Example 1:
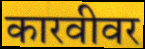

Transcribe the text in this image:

कारवीवर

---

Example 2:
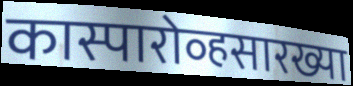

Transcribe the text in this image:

कास्पारोव्हसारख्या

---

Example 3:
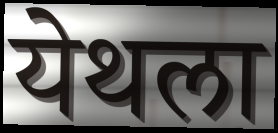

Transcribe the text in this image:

येथला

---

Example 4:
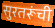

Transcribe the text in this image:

सुरतरूंची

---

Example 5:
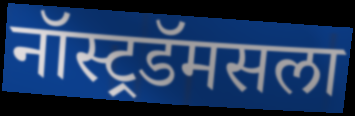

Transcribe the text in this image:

नॉस्ट्रडॅमसला